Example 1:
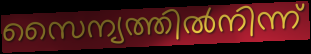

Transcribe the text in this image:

സൈന്യത്തിൽനിന്ന്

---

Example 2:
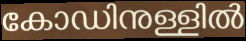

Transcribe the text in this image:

കോഡിനുള്ളിൽ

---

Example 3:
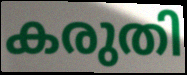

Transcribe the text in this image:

കരുതി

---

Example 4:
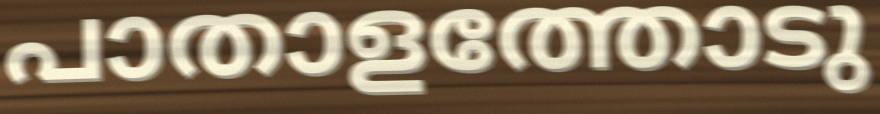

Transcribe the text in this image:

പാതാളത്തോടു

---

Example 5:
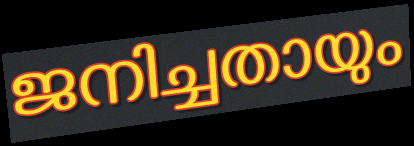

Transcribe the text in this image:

ജനിച്ചതായും